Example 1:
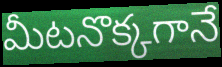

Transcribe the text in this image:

మీటనొక్కగానే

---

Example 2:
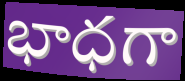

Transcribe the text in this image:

భాధగా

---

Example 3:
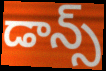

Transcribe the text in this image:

డాన్స్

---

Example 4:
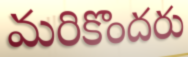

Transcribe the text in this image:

మరికొందరు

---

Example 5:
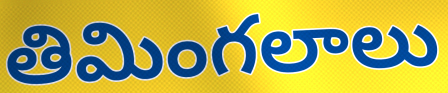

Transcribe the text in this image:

తిమింగలాలు